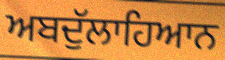
ਅਬਦੁੱਲਾਹਿਆਨ